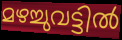
മഴച്ചുവട്ടിൽ